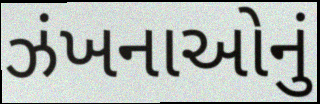
ઝંખનાઓનું